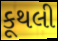
કૂથલી